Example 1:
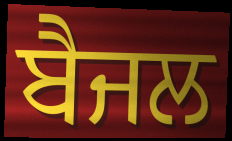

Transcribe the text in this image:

ਬੈਜਲ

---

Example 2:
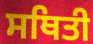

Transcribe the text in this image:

ਸਥਿਤੀ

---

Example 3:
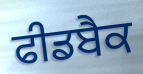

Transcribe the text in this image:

ਫੀਡਬੈਕ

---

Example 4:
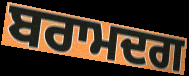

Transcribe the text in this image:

ਬਰਾਮਦਗ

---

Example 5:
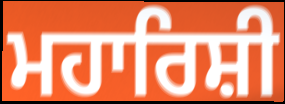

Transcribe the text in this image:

ਮਹਾਰਿਸ਼ੀ